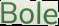
Bole